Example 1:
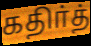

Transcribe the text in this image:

கதிர்த்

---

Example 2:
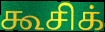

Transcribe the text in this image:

கூசிக்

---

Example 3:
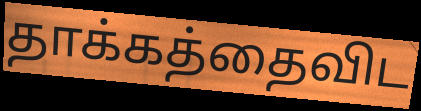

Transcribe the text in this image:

தாக்கத்தைவிட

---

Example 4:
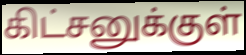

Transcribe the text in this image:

கிட்சனுக்குள்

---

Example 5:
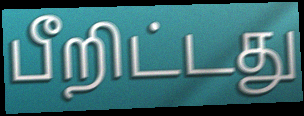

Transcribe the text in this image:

பீறிட்டது